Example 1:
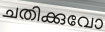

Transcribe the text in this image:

ചതിക്കുവോ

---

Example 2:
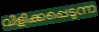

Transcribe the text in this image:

വിളിക്കപ്പെടുന്ന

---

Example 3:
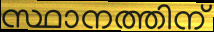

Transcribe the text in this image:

സ്ഥാനത്തിന്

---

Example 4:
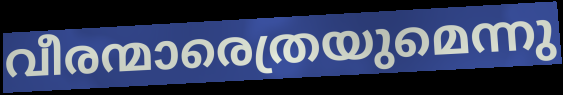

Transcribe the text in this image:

വീരന്മാരെത്രയുമെന്നു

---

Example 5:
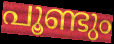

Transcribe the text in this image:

പൂണ്ടും